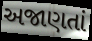
અજાણતાં